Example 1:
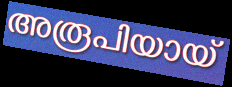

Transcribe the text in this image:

അരൂപിയായ്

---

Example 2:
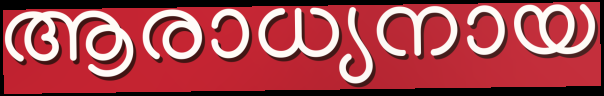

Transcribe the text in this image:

ആരാധ്യനായ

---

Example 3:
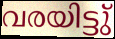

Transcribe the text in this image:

വരയിട്ടു്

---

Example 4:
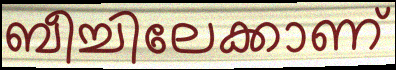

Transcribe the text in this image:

ബീച്ചിലേക്കാണ്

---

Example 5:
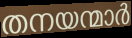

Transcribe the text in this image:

തനയന്മാർ